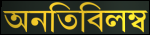
অনতিবিলম্ব